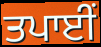
ਤਪਾਈਂ